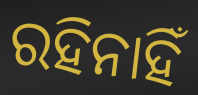
ରହିନାହିଁ